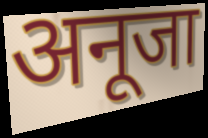
अनूजा